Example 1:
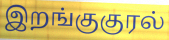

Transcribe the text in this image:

இறங்குகுரல்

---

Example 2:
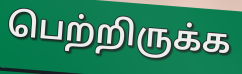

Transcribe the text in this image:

பெற்றிருக்க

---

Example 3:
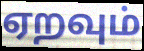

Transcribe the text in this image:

ஏறவும்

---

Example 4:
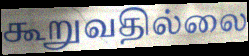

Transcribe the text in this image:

கூறுவதில்லை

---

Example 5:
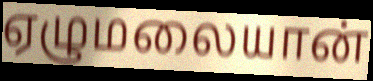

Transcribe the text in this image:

ஏழுமலையான்